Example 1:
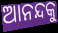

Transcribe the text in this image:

ଆନନ୍ଦକୁ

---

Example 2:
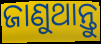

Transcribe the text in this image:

ଜାଣୁଥାନ୍ତୁ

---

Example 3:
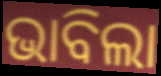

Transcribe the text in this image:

ଭାବିଲା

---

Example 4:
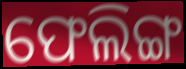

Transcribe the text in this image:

ଫେଲିଙ୍ଗ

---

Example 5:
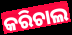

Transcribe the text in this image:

କରିଚାଲ